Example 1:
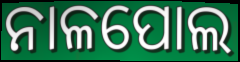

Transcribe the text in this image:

ନାଳପୋଲ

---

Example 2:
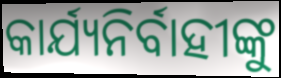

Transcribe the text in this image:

କାର୍ଯ୍ୟନିର୍ବାହୀଙ୍କୁ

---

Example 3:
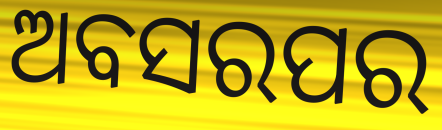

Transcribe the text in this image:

ଅବସରପର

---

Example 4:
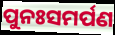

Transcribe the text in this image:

ପୁନଃସମର୍ପଣ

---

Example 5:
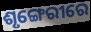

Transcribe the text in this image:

ଶୃଙ୍ଗେରୀରେ